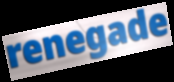
renegade